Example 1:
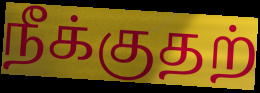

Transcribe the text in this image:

நீக்குதற்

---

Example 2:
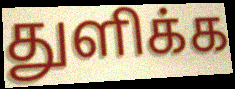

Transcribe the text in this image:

துளிக்க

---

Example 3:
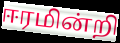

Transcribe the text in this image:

ஈரமின்றி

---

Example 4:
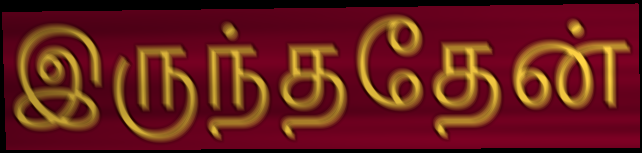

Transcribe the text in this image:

இருந்ததேன்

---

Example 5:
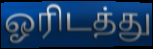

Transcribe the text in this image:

ஓரிடத்து